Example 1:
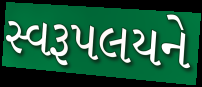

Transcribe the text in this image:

સ્વરૂપલયને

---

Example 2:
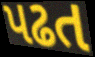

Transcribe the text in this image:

પઢત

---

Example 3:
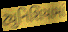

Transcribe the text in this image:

ટ્યુનિશિયામાં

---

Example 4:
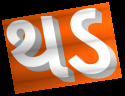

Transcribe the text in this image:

થડ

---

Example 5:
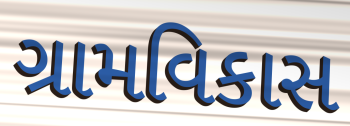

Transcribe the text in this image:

ગ્રામવિકાસ